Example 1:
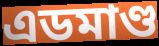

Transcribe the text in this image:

এডমাণ্ড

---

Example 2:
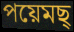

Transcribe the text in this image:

পয়েমছ্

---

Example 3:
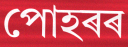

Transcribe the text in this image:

পোহৰৰ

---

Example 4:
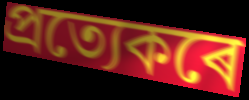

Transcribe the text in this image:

প্ৰত্যেকৰে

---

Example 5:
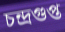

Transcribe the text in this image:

চন্দ্ৰগুপ্ত